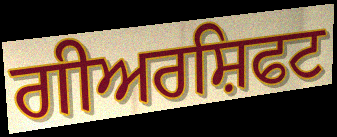
ਗੀਅਰਸ਼ਿਫਟ